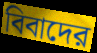
বিবাদের